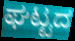
ಘಟ್ಟದ